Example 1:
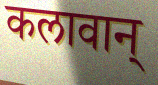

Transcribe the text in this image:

कलावान्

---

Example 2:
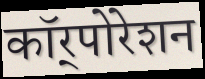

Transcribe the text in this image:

कॉर्पोरेशन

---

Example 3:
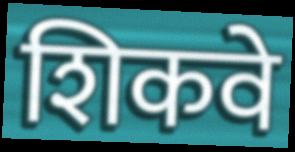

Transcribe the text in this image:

शिकवे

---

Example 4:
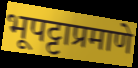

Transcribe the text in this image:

भूपट्टाप्रमाणे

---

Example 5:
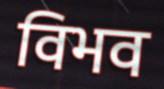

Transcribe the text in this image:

विभव